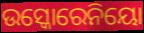
ଉସ୍କୋରେନିୟୋ